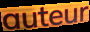
auteur